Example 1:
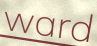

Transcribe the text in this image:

ward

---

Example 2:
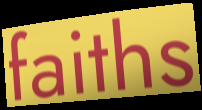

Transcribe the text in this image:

faiths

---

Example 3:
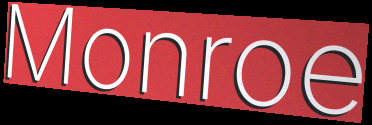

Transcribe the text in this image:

Monroe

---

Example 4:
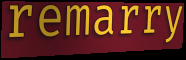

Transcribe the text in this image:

remarry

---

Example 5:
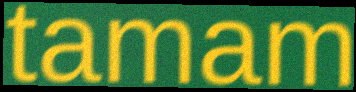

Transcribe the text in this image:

tamam